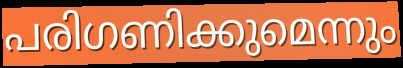
പരിഗണിക്കുമെന്നും